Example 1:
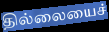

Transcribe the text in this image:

தில்லையைச்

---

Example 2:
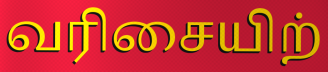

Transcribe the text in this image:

வரிசையிற்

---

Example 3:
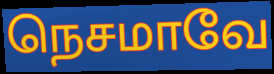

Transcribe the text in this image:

நெசமாவே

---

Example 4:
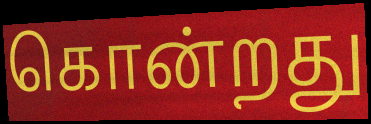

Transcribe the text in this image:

கொன்றது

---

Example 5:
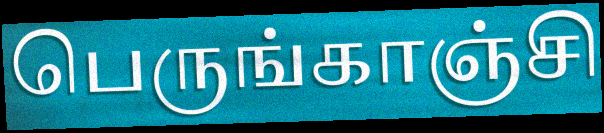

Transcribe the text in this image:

பெருங்காஞ்சி